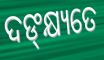
ଦଙ୍କ୍ଷ୍ଯତେ